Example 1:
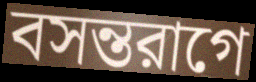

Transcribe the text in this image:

বসন্তরাগে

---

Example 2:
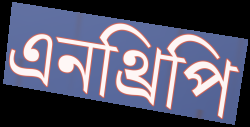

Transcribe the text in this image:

এনথ্রিপি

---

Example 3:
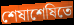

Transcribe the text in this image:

শেষাশেষিতে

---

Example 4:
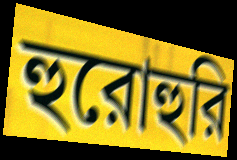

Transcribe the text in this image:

হুরোহুরি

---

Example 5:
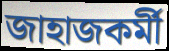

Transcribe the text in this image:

জাহাজকর্মী